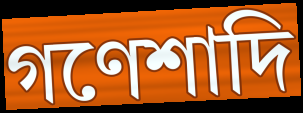
গণেশাদি